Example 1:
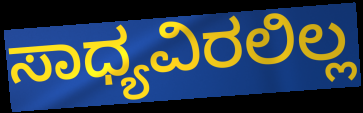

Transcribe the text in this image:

ಸಾಧ್ಯವಿರಲಿಲ್ಲ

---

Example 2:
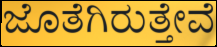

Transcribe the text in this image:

ಜೊತೆಗಿರುತ್ತೇವೆ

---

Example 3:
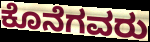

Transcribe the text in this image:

ಕೊನೆಗವರು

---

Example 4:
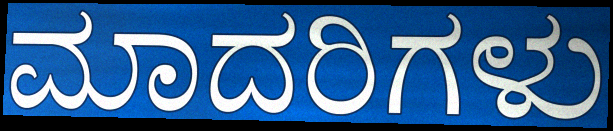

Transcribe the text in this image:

ಮಾದರಿಗಳು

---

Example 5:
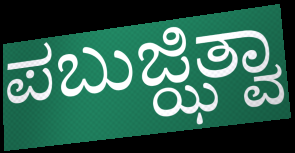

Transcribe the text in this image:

ಪಬುಜ್ಝಿತ್ವಾ